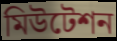
মিউটেশন